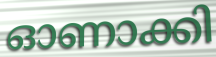
ഓണാക്കി